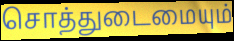
சொத்துடைமையும்